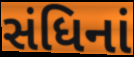
સંધિનાં